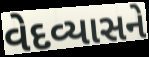
વેદવ્યાસને